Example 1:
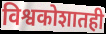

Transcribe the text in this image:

विश्वकोशातही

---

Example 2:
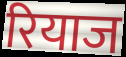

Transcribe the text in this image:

रियाज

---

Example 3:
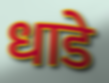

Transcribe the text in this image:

धाडे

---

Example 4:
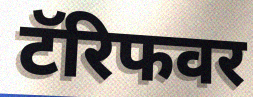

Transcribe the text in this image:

टॅरिफवर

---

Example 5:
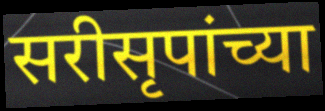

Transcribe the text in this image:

सरीसृपांच्या